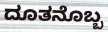
ದೂತನೊಬ್ಬ